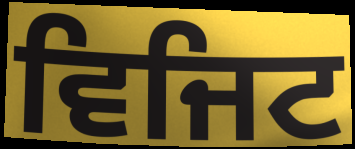
ਵਿਜਿਟ